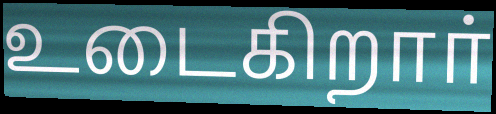
உடைகிறார்